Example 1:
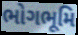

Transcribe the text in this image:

ભોગભૂમિ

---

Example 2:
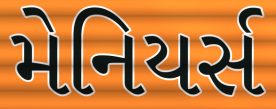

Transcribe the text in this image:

મેનિયર્સ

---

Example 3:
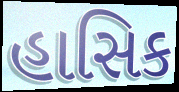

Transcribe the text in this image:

હાસિક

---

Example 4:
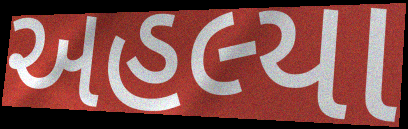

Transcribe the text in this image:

અહલ્યા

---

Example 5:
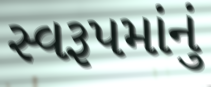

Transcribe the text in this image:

સ્વરૂપમાંનું